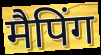
मैपिंग